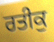
ਰਤੀਕੁ